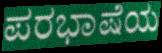
ಪರಭಾಷೆಯ